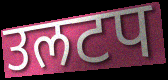
उलटप